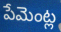
పేమెంట్ల